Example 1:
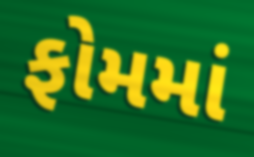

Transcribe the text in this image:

ફોમમાં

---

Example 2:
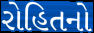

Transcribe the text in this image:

રોહિતનો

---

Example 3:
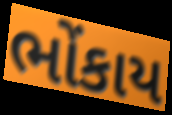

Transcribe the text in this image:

ભોંકાય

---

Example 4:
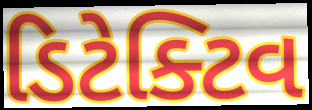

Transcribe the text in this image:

ડિટેક્ટિવ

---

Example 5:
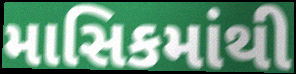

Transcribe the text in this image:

માસિકમાંથી